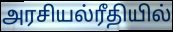
அரசியல்ரீதியில்